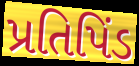
પ્રતિપિંડ